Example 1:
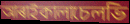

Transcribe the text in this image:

আৰাইকালাচেলভি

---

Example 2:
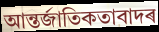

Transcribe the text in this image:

আন্তৰ্জাতিকতাবাদৰ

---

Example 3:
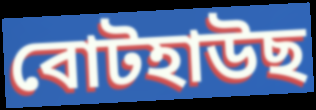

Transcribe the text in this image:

বোটহাউছ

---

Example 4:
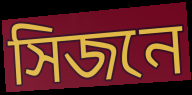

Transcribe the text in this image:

সিজনে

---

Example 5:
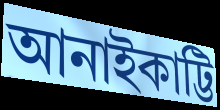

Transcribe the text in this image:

আনাইকাট্টি